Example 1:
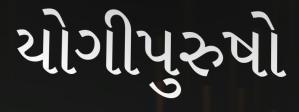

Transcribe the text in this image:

યોગીપુરુષો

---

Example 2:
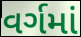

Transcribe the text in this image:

વર્ગમાં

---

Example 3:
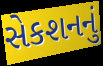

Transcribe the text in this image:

સેકશનનું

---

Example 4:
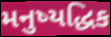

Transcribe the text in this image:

મનુષ્યદ્ધિક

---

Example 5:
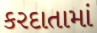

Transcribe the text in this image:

કરદાતામાં